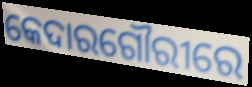
କେଦାରଗୌରୀରେ